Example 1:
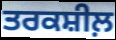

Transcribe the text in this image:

ਤਰਕਸ਼ੀਲ਼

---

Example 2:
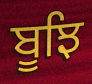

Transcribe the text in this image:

ਬੂਝਿ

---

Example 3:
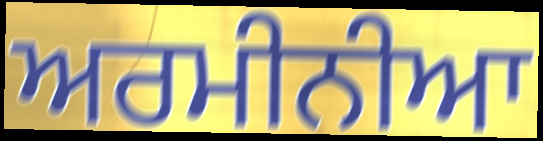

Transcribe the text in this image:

ਅਰਮੀਨੀਆ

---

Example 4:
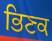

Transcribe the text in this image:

ਭਿਣਕ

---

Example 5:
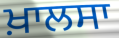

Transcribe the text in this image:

ਖ਼ਾਲਸਾ